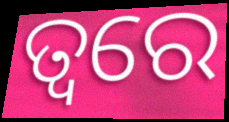
ତ୍ଵରେ